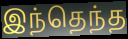
இந்தெந்த